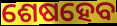
ଶେଷହେବ